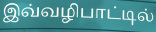
இவ்வழிபாட்டில்